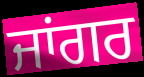
ਜਾਂਗਰ